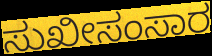
ಸುಖೀಸಂಸಾರ